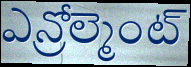
ఎన్రోల్మెంట్